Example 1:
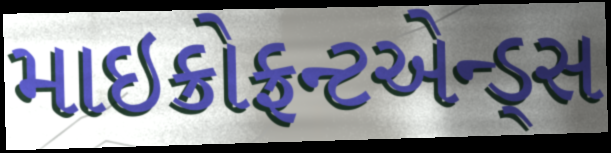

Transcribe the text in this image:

માઇક્રોફ્રન્ટએન્ડ્સ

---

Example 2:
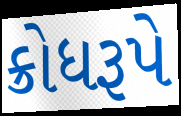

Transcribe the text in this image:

ક્રોધરૂપે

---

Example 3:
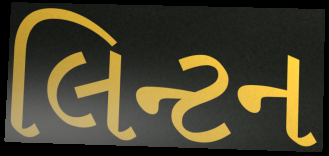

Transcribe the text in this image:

લિન્ટન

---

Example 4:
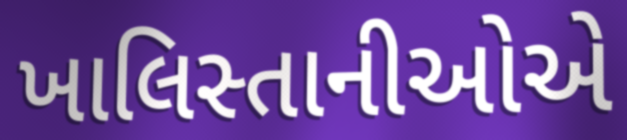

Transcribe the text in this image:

ખાલિસ્તાનીઓએ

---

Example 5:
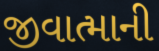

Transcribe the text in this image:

જીવાત્માની